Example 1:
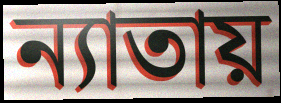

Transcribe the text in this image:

ন্যাতায়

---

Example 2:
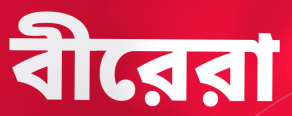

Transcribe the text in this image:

বীরেরা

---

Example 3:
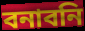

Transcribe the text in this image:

বনাবনি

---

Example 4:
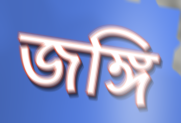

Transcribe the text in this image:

জঙ্গি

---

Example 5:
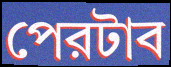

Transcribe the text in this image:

পেরটাব